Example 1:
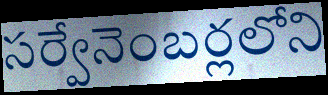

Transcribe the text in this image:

సర్వేనెంబర్లలోని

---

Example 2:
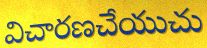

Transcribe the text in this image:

విచారణచేయుచు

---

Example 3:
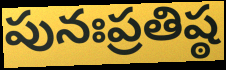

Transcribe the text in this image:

పునఃప్రతిష్ఠ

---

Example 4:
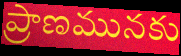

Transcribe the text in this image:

ప్రాణమునకు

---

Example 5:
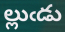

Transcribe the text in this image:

ల్లుఁడు